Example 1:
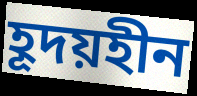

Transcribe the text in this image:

হূদয়হীন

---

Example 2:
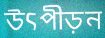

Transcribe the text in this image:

উৎপীড়ন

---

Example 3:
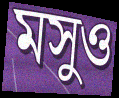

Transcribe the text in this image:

মসুও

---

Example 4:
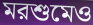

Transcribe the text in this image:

মরশুমেও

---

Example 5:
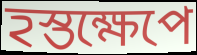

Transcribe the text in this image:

হস্তক্ষেপে